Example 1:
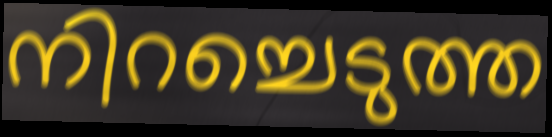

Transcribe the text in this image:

നിറച്ചെടുത്ത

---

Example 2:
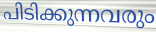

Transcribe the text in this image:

പിടിക്കുന്നവരും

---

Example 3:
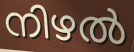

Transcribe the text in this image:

നിഴൽ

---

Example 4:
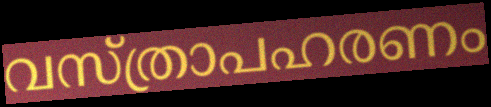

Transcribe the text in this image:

വസ്ത്രാപഹരണം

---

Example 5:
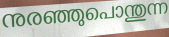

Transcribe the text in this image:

നുരഞ്ഞുപൊന്തുന്ന